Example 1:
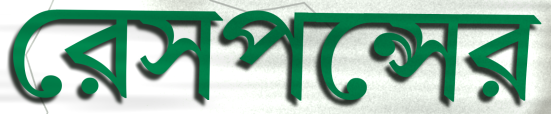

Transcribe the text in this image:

রেসপন্সের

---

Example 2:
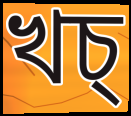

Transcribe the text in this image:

খচ্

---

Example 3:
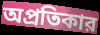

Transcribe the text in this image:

অপ্রতিকার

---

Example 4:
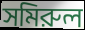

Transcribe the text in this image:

সমিরুল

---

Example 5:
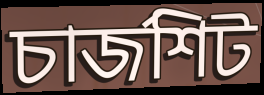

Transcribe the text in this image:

চার্জশিট